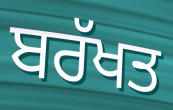
ਬਰੱਖਤ